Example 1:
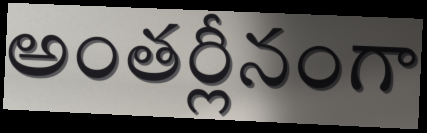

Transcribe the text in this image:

అంతర్లీనంగా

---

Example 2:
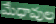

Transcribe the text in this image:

మేధావుల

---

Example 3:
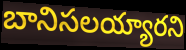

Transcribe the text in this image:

బానిసలయ్యారని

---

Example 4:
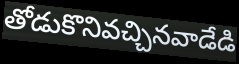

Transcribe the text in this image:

తోడుకొనివచ్చినవాడేడి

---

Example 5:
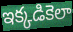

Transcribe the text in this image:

ఇక్కడికెలా